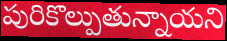
పురికొల్పుతున్నాయని